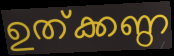
ഉത്ക്കണ്ഠ